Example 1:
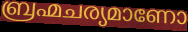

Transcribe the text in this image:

ബ്രഹ്മചര്യമാണോ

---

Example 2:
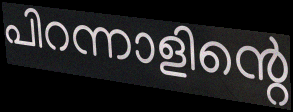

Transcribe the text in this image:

പിറന്നാളിന്റെ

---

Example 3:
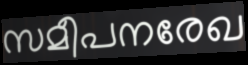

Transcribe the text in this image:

സമീപനരേഖ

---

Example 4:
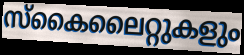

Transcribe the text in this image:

സ്കൈലൈറ്റുകളും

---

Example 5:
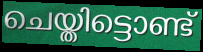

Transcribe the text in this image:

ചെയ്തിട്ടൊണ്ട്